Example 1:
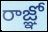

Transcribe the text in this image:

రాజ్ఞో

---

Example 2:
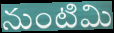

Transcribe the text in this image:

నుంటిమి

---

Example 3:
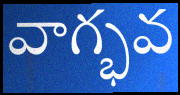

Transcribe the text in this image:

వాగ్భవ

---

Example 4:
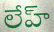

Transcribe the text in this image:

లేహ్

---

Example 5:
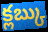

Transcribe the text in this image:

క్లబ్కు